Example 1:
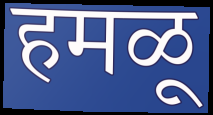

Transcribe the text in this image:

हमळू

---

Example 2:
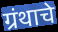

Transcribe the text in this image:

ग्रंथाचे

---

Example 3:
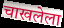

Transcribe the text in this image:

चाखलेला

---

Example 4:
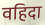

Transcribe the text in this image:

वहिदा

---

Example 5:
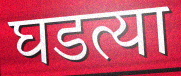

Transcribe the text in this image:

घडत्या